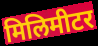
मिलिमीटर